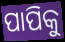
ପାପିକୁ